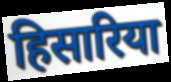
हिसारिया